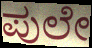
ಪುಲೇ